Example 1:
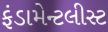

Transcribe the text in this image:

ફંડામેન્ટલીસ્ટ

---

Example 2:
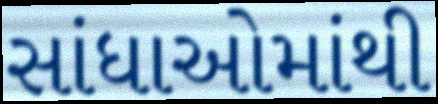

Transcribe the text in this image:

સાંધાઓમાંથી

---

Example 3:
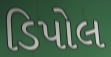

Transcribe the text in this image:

ડિપોલ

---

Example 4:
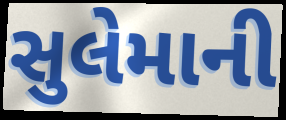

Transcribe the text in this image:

સુલેમાની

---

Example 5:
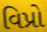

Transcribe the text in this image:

વિપ્રો